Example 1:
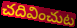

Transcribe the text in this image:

చదివించుట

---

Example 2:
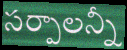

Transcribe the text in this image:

సర్పాలన్నీ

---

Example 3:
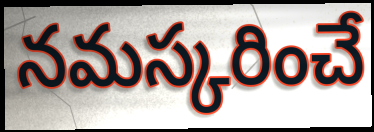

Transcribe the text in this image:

నమస్కరించే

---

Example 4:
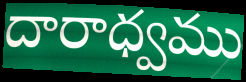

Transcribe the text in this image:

దారాధ్వము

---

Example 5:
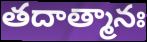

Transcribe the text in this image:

తదాత్మానః